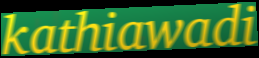
kathiawadi